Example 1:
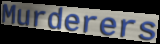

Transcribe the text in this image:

Murderers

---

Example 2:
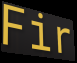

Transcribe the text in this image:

Fir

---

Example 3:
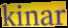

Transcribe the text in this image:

kinar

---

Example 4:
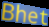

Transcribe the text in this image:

Bhet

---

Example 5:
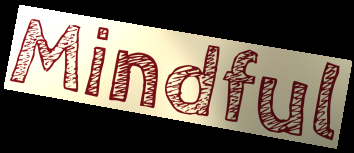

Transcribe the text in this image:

Mindful